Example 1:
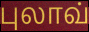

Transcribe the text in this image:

புலாவ்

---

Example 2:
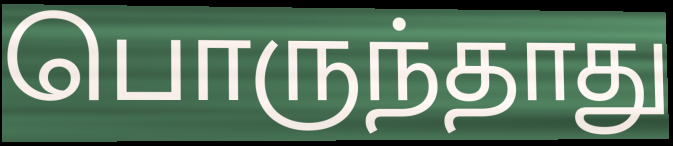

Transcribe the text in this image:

பொருந்தாது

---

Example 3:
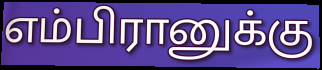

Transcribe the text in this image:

எம்பிரானுக்கு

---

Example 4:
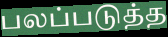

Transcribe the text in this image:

பலப்படுத்த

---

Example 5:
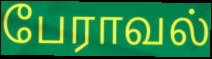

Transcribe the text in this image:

பேராவல்